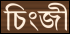
চিংজী